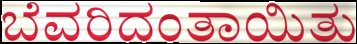
ಬೆವರಿದಂತಾಯಿತು